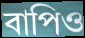
বাপিও